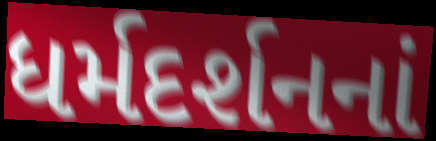
ધર્મદર્શનનાં